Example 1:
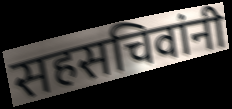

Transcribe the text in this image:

सहसचिवांनी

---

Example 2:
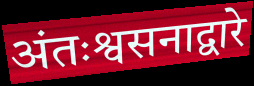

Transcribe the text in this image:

अंतःश्वसनाद्वारे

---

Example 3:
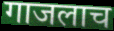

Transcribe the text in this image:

गाजलाच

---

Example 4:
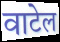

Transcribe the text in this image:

वाटेल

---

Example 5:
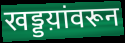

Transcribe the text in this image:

खड्डय़ांवरून